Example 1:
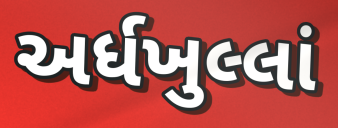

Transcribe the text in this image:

અર્ધખુલ્લાં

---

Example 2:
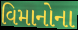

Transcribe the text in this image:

વિમાનોના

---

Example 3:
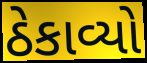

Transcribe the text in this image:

ઠેકાવ્યો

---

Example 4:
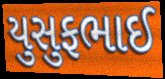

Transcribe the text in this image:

યુસુફભાઈ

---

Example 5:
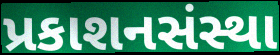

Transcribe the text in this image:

પ્રકાશનસંસ્થા